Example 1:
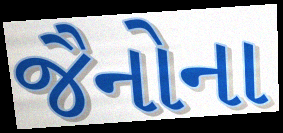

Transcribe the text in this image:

જૈનોના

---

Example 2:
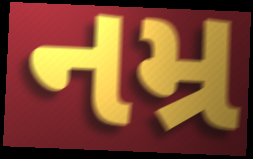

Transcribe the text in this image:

નમ્ર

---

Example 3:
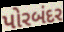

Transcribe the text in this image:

પોરબંદર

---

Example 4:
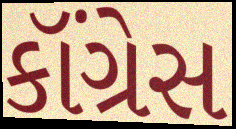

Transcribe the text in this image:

કૉંગ્રેસ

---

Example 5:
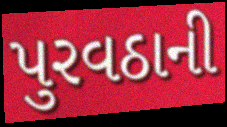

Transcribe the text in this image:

પુરવઠાની